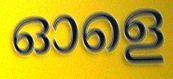
ഓളെ